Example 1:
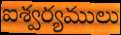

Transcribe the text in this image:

ఐశ్వర్యములు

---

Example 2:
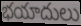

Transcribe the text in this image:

భయాదులు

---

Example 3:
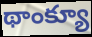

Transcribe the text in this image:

థాంక్యూ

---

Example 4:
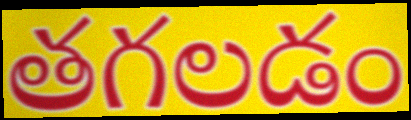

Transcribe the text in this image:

తగలడం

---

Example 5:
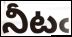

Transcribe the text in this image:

నీటఁ